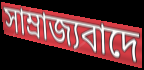
সাম্ৰাজ্যবাদে